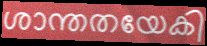
ശാന്തതയേകി